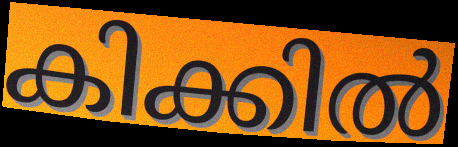
കിക്കിൽ